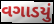
વગાડયું